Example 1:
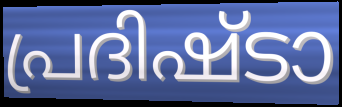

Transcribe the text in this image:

പ്രദിഷ്ടാ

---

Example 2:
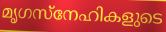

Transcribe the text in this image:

മൃഗസ്നേഹികളുടെ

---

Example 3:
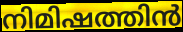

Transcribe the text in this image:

നിമിഷത്തിൻ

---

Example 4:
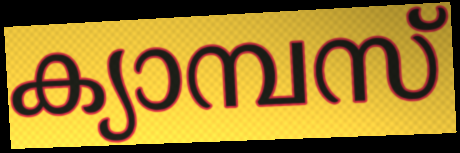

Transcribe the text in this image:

ക്യാമ്പസ്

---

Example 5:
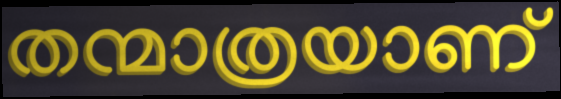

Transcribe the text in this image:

തന്മാത്രയാണ്